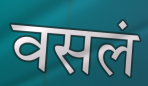
वसलं